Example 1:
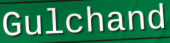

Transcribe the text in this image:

Gulchand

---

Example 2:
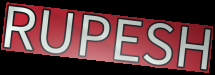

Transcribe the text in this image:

RUPESH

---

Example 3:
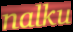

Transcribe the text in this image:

nalku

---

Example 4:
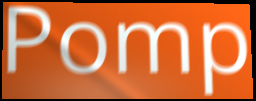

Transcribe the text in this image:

Pomp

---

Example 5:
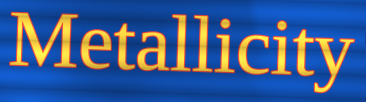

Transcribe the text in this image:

Metallicity